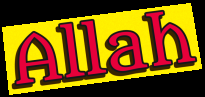
Allah